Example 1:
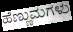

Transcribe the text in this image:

ಹೆಣ್ಣುಮಗಳು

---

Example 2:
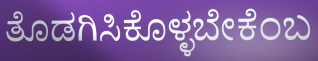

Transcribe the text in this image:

ತೊಡಗಿಸಿಕೊಳ್ಳಬೇಕೆಂಬ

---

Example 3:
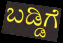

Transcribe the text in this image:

ಬಡ್ಡಿಗೆ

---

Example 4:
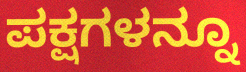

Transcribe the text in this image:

ಪಕ್ಷಗಳನ್ನೂ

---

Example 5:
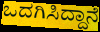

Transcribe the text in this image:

ಒದಗಿಸಿದ್ದಾನೆ